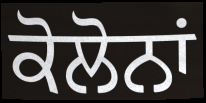
ਕੋਲੋਨਾਂ